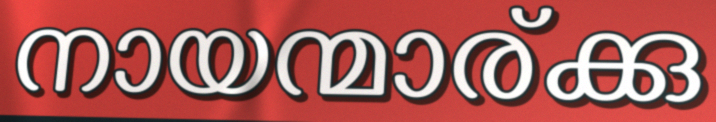
നായന്മാര്ക്കു